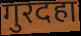
गुरदहा